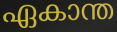
ഏകാന്ത